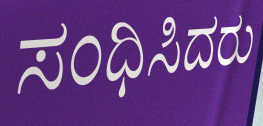
ಸಂಧಿಸಿದರು